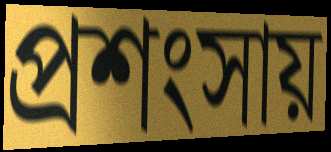
প্রশংসায়